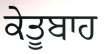
ਕੇਤੂਬਾਹ